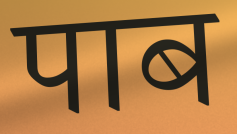
पाब